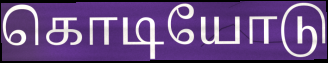
கொடியோடு